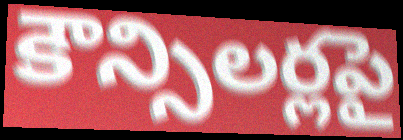
కౌన్సిలర్లపై